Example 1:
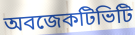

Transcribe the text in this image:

অবজেকটিভিটি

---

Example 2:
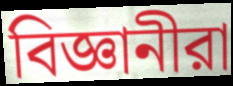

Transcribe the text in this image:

বিজ্ঞানীরা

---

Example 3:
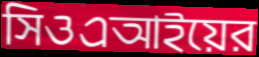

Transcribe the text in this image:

সিওএআইয়ের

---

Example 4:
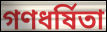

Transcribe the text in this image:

গণধর্ষিতা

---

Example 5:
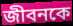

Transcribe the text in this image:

জীবনকে